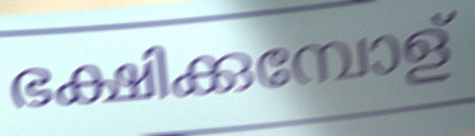
ഭക്ഷിക്കുമ്പോള്